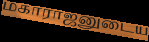
மகாராஜனுடைய